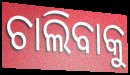
ଚାଲିବାକୁ